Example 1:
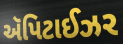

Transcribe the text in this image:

ઍપિટાઈઝર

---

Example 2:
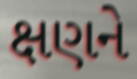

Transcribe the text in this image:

ક્ષણને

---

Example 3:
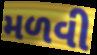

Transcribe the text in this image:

મળવી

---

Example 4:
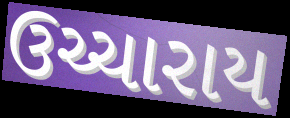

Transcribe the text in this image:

ઉચ્ચારાય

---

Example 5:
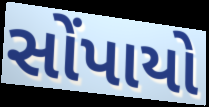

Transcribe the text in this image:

સોંપાયો